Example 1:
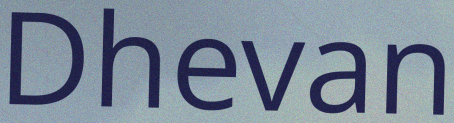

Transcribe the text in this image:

Dhevan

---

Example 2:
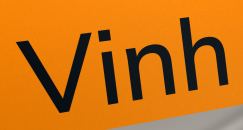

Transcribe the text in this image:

Vinh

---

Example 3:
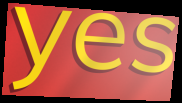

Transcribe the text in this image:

yes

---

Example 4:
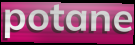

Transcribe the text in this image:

potane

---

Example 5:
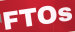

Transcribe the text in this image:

FTOs